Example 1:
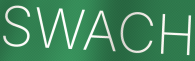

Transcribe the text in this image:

SWACH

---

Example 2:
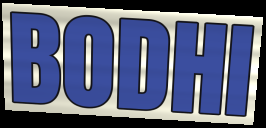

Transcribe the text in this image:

BODHI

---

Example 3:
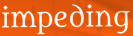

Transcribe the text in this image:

impeding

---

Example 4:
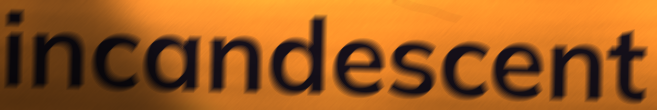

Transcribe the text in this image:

incandescent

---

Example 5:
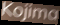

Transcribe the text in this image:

Kojima